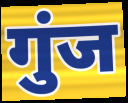
गुंज